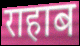
राहाब